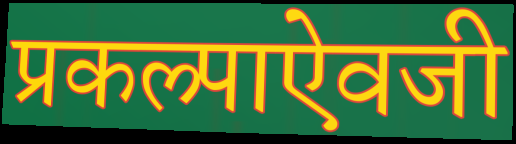
प्रकल्पाऐवजी